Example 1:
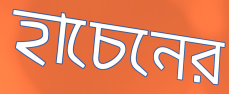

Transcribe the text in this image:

হাচেনের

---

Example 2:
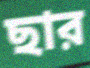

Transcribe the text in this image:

ছার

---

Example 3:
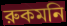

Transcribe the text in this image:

রুকমনি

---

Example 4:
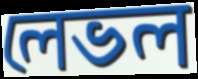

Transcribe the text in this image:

লেভল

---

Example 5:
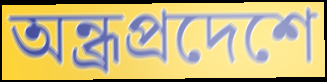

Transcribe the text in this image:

অন্ধ্রপ্রদেশে